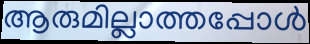
ആരുമില്ലാത്തപ്പോൾ